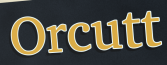
Orcutt